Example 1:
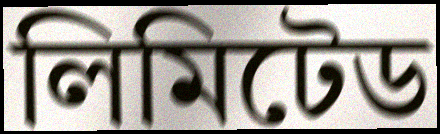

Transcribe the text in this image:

লিমিটেড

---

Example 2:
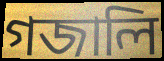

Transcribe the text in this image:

গজালি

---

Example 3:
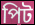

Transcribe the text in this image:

পিট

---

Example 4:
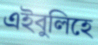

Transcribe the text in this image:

এইবুলিহে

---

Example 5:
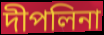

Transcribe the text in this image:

দীপলিনা